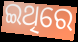
ଇଥିରେ